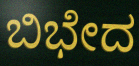
ಬಿಭೇದ